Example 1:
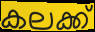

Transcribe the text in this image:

കലക്ക്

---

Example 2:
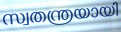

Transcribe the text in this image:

സ്വതന്ത്രയായി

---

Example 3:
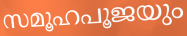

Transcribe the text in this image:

സമൂഹപൂജയും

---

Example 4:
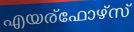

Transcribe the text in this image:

എയര്ഫോഴ്സ്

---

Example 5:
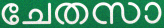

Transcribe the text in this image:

ചേതസാ